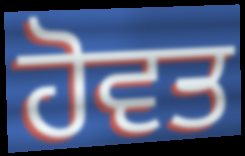
ਹੋਵਤ